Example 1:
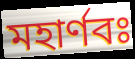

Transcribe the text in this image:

মহার্ণবঃ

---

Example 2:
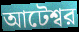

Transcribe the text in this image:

আটেশ্বর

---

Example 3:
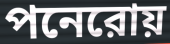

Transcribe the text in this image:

পনেরোয়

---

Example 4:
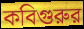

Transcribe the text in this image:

কবিগুরুর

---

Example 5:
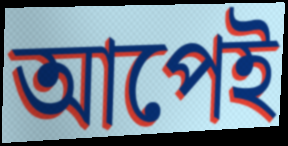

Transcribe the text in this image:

আপেই